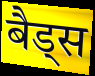
बैड्स